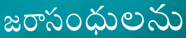
జరాసంధులను